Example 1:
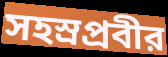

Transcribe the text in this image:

সহস্রপ্রবীর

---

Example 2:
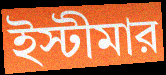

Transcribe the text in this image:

ইস্টীমার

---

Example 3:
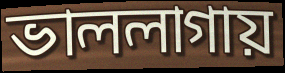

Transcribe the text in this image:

ভাললাগায়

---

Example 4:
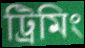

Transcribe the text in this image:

ট্রিমিং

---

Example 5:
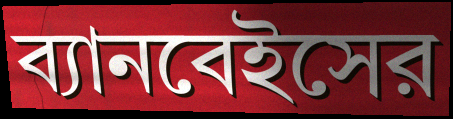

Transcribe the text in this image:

ব্যানবেইসের